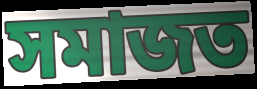
সমাজত